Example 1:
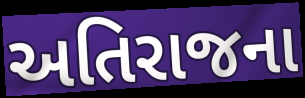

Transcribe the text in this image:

અતિરાજના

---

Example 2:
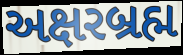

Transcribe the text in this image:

અક્ષરબ્રહ્મ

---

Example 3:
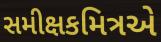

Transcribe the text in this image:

સમીક્ષકમિત્રએ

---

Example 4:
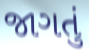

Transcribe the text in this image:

જાગતું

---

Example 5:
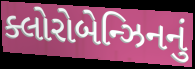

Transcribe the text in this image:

ક્લોરોબેન્ઝિનનું